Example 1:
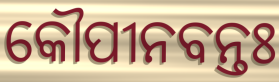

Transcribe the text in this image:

କୌପୀନବନ୍ତଃ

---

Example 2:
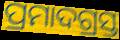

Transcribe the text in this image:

ପ୍ରମାଦଗ୍ରସ୍ତ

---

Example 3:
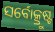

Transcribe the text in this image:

ସର୍ବୋତ୍କ୍ରୁଷ୍ଟ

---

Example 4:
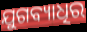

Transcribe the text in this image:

ଯୁଗବ୍ୟାଧିର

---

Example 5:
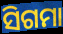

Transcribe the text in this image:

ସିଗମା